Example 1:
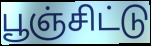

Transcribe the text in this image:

பூஞ்சிட்டு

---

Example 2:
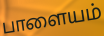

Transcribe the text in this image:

பாளையம்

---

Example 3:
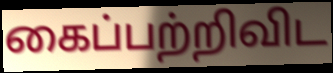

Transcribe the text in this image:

கைப்பற்றிவிட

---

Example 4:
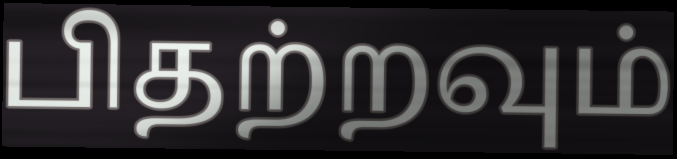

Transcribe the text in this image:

பிதற்றவும்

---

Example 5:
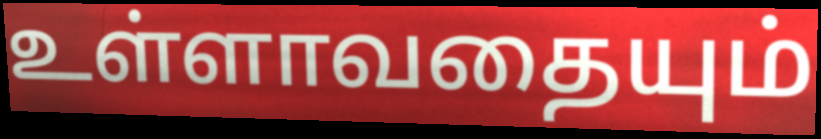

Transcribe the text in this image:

உள்ளாவதையும்